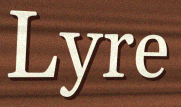
Lyre